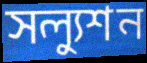
সল্যুশন